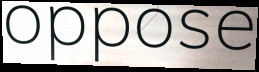
oppose